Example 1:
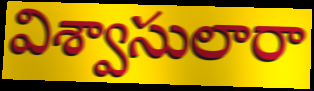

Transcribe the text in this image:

విశ్వాసులారా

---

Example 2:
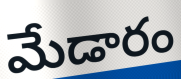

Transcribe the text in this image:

మేడారం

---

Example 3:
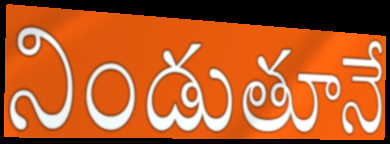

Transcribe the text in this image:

నిండుతూనే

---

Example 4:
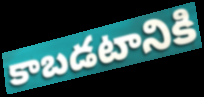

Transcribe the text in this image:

కాబడటానికి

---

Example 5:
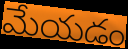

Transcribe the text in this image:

మేయడం